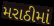
મરાઠીમાં